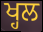
ਖ੍ਹਲ